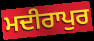
ਮਦੀਰਾਪੁਰ